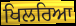
ਖਿਲਰਿਆ